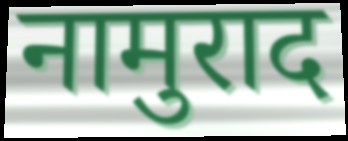
नामुराद